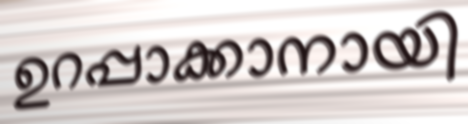
ഉറപ്പാക്കാനായി